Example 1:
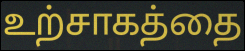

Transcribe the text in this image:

உற்சாகத்தை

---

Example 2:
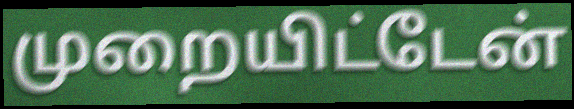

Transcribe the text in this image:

முறையிட்டேன்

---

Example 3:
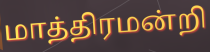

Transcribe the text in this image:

மாத்திரமன்றி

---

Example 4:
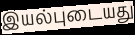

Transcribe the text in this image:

இயல்புடையது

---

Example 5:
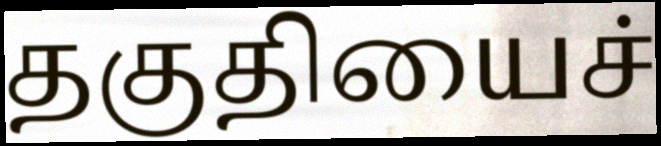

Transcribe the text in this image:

தகுதியைச்